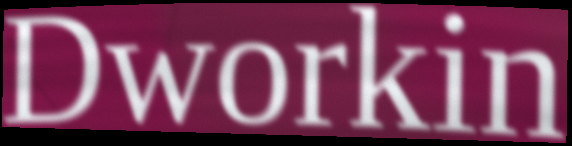
Dworkin